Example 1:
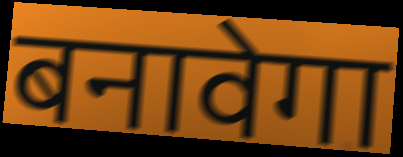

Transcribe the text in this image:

बनावेगा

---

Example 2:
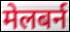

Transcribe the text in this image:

मेलबर्न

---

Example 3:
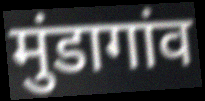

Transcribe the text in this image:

मुंडागांव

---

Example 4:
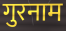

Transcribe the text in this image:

गुरनाम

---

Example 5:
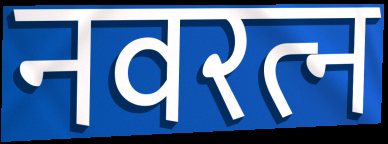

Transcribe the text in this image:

नवरत्‍न